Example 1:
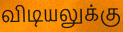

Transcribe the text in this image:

விடியலுக்கு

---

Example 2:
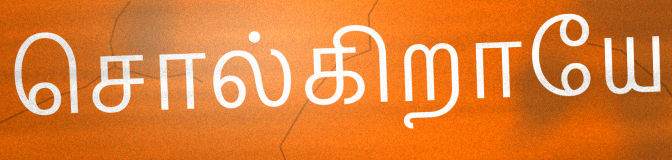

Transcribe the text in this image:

சொல்கிறாயே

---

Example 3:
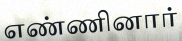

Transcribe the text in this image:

எண்ணினார்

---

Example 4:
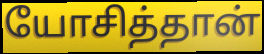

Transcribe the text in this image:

யோசித்தான்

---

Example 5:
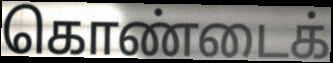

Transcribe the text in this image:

கொண்டைக்